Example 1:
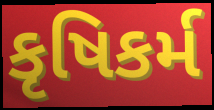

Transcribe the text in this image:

કૃષિકર્મ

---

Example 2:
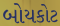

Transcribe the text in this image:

બોયકોટ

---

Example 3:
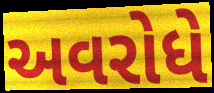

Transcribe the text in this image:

અવરોધે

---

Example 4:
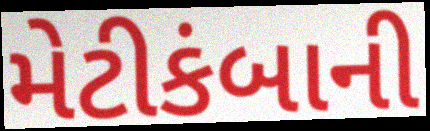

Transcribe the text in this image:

મેટીકંબાની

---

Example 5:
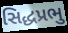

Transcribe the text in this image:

સિદ્ધપ્રભુ